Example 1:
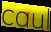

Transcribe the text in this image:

caul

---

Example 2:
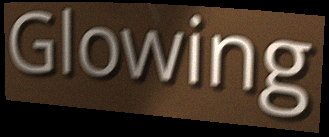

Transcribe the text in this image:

Glowing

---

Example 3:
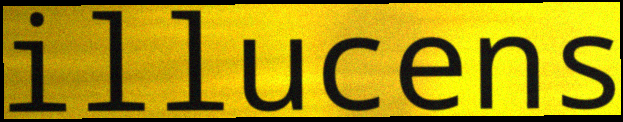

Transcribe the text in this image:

illucens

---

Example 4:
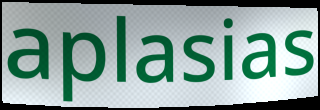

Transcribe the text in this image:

aplasias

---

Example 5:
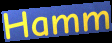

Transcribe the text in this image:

Hamm